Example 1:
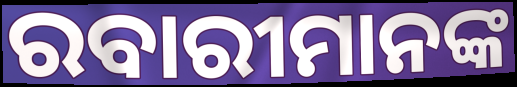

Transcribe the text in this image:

ରବାରୀମାନଙ୍କ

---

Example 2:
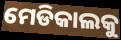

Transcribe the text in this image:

ମେଡିକାଲକୁ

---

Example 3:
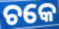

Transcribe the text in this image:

ଚକେ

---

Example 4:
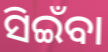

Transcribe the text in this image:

ସିଇଁବା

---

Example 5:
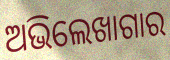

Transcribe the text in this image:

ଅଭିଲେଖାଗାର